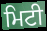
ਮਿਟੀ